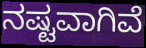
ನಷ್ಟವಾಗಿವೆ